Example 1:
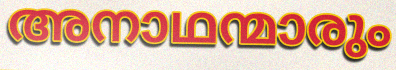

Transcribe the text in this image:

അനാഥന്മാരും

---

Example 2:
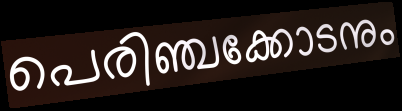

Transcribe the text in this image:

പെരിഞ്ചക്കോടനും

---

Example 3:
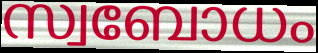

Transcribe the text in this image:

സ്വബോധം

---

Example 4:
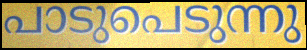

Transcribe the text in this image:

പാടുപെടുന്നു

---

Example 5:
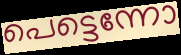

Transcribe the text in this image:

പെട്ടെന്നോ